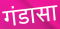
गंडासा